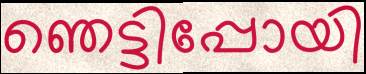
ഞെട്ടിപ്പോയി